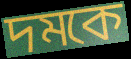
দমকে